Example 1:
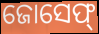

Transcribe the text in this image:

ଜୋସେଫ୍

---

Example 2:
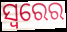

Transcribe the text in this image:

ସ୍ୱରେର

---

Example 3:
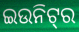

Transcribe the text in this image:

ଇଉନିଟ୍‍ର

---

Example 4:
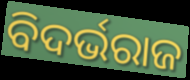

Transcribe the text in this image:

ବିଦର୍ଭରାଜ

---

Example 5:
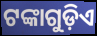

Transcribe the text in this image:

ଟଙ୍କାଗୁଡ଼ିଏ